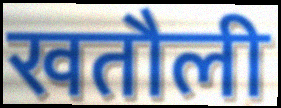
खतौली